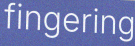
fingering